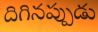
దిగినప్పుడు